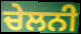
ਚੇਲਨੀ